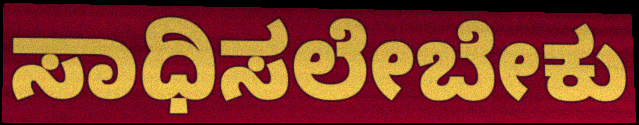
ಸಾಧಿಸಲೇಬೇಕು